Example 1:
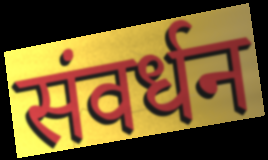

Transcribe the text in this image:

संवर्धन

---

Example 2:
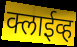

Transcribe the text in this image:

क्लाईव्ह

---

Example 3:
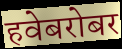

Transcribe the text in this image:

हवेबरोबर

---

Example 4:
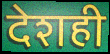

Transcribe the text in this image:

देशही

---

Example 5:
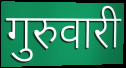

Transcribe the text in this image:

गुरुवारी